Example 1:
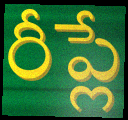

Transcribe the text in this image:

రీప్లే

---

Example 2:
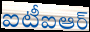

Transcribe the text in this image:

ఐటీఐఆర్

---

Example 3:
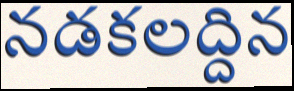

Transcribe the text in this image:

నడకలద్దిన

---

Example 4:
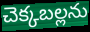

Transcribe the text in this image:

చెక్కబల్లను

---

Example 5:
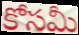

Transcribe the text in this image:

కోసమీ